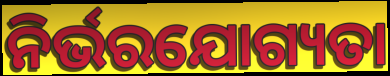
ନିର୍ଭରଯୋଗ୍ୟତା